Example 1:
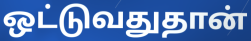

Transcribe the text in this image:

ஒட்டுவதுதான்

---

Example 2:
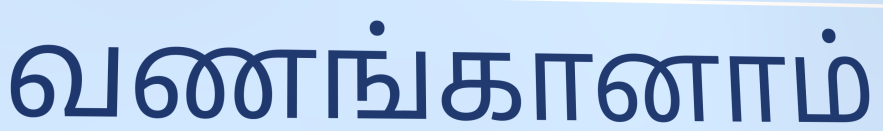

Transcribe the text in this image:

வணங்கானாம்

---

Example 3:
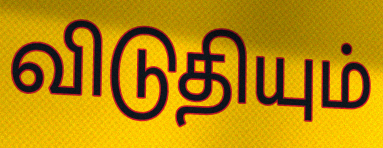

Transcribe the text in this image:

விடுதியும்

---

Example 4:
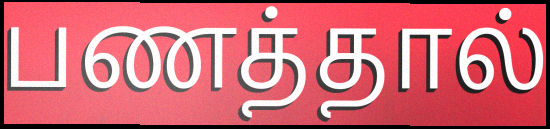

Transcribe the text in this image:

பணத்தால்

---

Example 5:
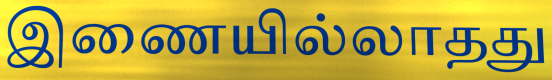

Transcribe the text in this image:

இணையில்லாதது